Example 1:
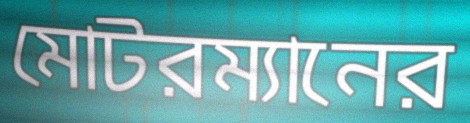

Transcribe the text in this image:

মোটরম্যানের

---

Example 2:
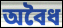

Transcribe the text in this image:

অবৈধ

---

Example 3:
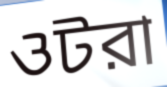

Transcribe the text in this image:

ওটরা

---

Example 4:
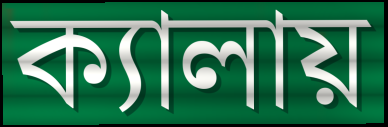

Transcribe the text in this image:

ক্যালায়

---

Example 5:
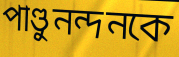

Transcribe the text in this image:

পাণ্ডুনন্দনকে